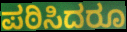
ಪಠಿಸಿದರೂ